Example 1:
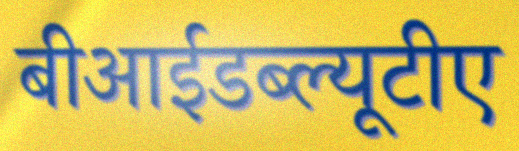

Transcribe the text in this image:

बीआईडब्ल्यूटीए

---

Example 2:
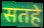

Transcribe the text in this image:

सतहे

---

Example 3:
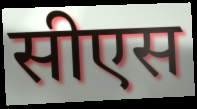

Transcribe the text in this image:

सीएस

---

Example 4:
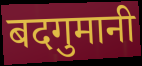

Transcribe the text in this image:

बदगुमानी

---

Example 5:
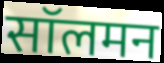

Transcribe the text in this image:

सॉलमन